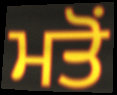
ਮਤੋਂ